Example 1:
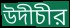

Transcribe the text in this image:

উদীচীর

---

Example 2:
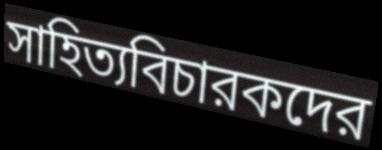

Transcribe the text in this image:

সাহিত্যবিচারকদের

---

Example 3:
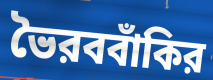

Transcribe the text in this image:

ভৈরববাঁকির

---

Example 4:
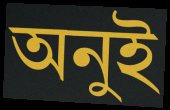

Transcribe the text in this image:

অনুই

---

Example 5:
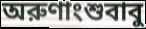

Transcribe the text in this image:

অরুণাংশুবাবু